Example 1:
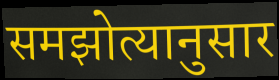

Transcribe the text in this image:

समझोत्यानुसार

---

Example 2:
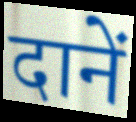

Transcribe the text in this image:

दानें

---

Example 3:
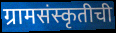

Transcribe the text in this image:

ग्रामसंस्कृतीची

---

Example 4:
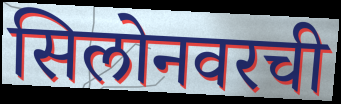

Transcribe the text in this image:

सिलोनवरची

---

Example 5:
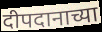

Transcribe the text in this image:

दीपदानाच्या